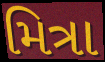
મિત્રા